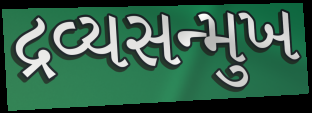
દ્રવ્યસન્મુખ